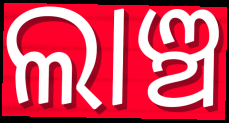
ଲାଞ୍ଚ